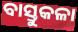
ବାସ୍ତୁକଳା